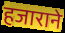
हजाराने